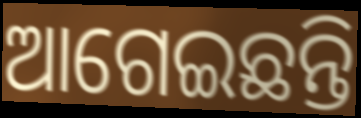
ଆଗେଇଛନ୍ତି